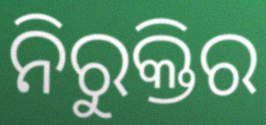
ନିରୁକ୍ତିର